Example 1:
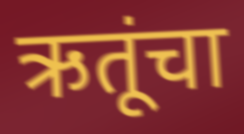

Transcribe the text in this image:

ऋतूंचा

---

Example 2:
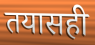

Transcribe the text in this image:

तयासही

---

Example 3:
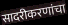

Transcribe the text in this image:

सादरीकरणांचा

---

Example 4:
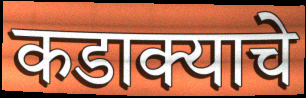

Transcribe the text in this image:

कडाक्याचे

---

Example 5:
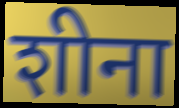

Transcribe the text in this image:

शीना